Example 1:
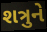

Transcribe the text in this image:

શત્રુને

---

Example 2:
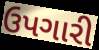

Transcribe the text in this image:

ઉપગારી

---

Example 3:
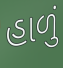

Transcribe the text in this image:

હાળું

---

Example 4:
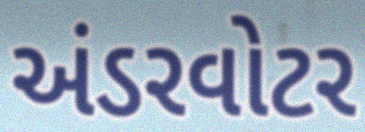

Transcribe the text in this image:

અંડરવોટર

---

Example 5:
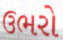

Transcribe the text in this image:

ઉભરો